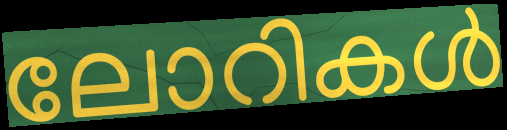
ലോറികൾ